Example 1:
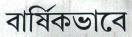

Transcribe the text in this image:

বার্ষিকভাবে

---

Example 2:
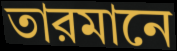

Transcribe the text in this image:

তারমানে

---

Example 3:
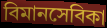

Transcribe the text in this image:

বিমানসেবিকা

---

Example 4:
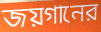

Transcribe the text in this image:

জয়গানের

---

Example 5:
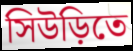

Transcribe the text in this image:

সিউড়িতে